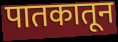
पातकातून